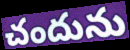
చందును